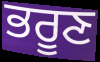
ਭਰੂਣ